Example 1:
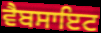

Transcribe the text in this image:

ਵੈਬਸਾਇਟ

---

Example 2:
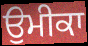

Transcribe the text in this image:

ਉਮੀਕਾ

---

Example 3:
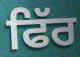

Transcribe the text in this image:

ਫਿੱਰ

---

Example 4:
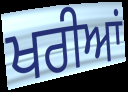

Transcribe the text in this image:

ਖਰੀਆਂ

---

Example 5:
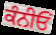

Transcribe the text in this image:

ਕੰਨੀਓਂ